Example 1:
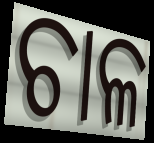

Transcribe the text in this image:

ଚାଳ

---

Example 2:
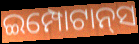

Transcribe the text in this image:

ଇମ୍ପୋଟାନ୍‌ସ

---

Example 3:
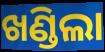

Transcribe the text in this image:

ଖଣ୍ଡିଲା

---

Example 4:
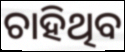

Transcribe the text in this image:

ଚାହିଥିବ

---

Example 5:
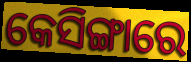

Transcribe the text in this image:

କେସିଙ୍ଗାରେ